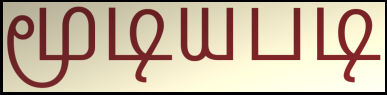
மூடியபடி